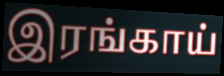
இரங்காய்